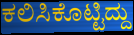
ಕಲಿಸಿಕೊಟ್ಟಿದ್ದು